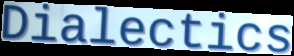
Dialectics